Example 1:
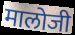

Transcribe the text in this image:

मालोजी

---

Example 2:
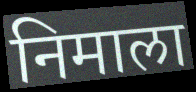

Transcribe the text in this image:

निमाला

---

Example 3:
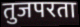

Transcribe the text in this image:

तुजपरता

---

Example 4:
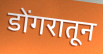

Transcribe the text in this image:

डोंगरातून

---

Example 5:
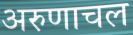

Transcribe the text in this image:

अरुणाचल